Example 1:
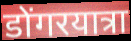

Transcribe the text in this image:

डोंगरयात्रा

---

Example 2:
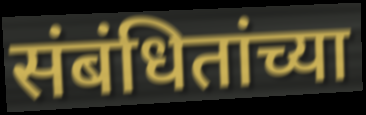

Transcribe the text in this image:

संबंधितांच्या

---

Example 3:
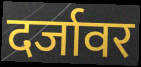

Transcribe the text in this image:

दर्जावर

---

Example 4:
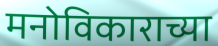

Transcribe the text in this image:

मनोविकाराच्या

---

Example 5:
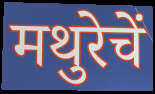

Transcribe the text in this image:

मथुरेचें